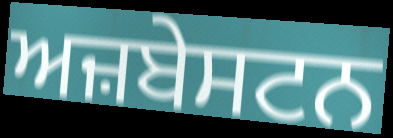
ਅਜ਼ਬੇਸਟਨ